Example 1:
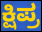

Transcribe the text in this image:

ಕ್ಷಿಪ್ರ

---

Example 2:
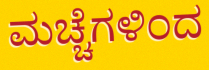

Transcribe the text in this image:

ಮಚ್ಚೆಗಳಿಂದ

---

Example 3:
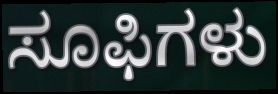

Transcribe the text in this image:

ಸೂಫಿಗಳು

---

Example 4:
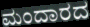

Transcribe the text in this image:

ಮಂದಾರದ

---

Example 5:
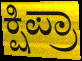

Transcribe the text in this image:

ಕ್ಷಿಪ್ರಾ